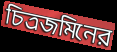
চিত্রজমিনের